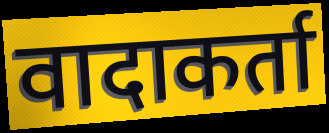
वादाकर्ता